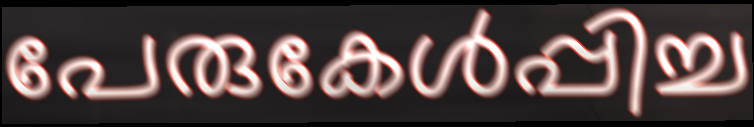
പേരുകേൾപ്പിച്ച